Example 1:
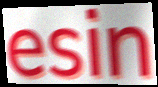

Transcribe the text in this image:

esin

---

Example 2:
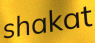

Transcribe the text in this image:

shakat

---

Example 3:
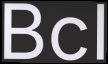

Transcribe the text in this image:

Bcl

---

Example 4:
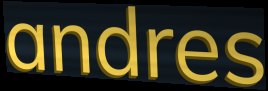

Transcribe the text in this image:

andres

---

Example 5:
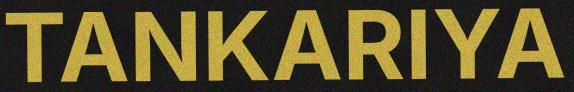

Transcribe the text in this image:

TANKARIYA